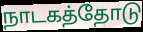
நாடகத்தோடு